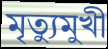
মৃত্যুমুখী